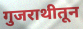
गुजराथीतून